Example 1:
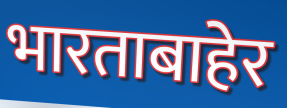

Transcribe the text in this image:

भारताबाहेर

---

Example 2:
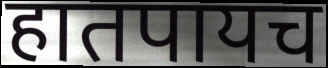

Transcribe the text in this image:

हातपायच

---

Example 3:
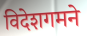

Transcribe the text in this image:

विदेशगमने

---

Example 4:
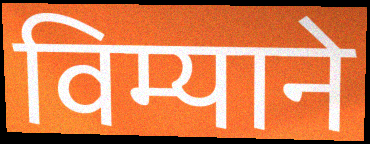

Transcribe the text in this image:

विम्याने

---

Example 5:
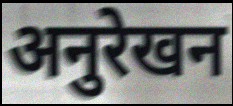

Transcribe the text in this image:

अनुरेखन